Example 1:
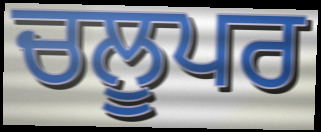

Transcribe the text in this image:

ਚਲੂਪਰ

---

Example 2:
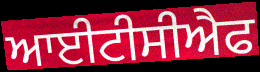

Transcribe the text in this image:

ਆਈਟੀਸੀਐਫ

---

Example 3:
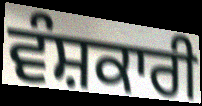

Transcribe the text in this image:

ਵੰਸ਼ਕਾਰੀ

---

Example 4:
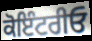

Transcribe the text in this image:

ਕੋਇੰਟਰੀਓ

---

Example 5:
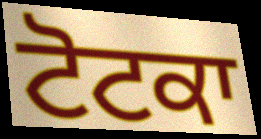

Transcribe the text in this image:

ਟੋਟਕਾ